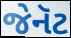
જેનૅટ